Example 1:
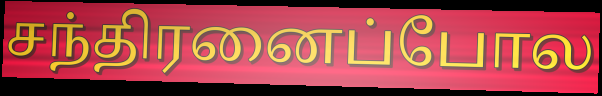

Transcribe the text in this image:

சந்திரனைப்போல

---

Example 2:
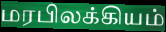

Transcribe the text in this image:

மரபிலக்கியம்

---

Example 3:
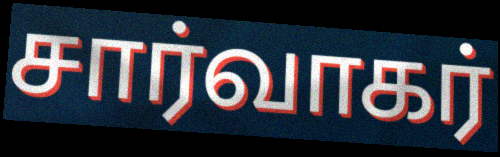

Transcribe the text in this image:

சார்வாகர்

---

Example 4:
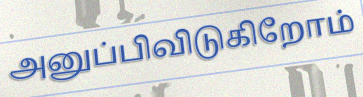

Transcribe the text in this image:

அனுப்பிவிடுகிறோம்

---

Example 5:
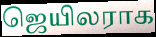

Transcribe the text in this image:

ஜெயிலராக